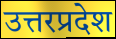
उत्तरप्रदेश